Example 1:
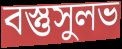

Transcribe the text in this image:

বস্তুসুলভ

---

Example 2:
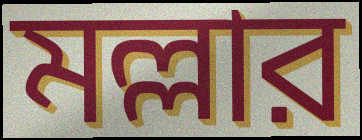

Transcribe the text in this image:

মল্লার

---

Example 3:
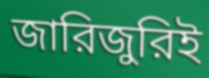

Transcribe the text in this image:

জারিজুরিই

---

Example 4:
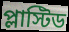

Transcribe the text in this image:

প্লাস্টিড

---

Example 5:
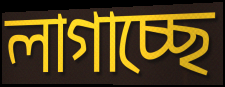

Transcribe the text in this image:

লাগাচ্ছে